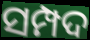
ସମ୍ପଦ